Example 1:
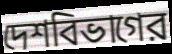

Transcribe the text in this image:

দেশবিভাগের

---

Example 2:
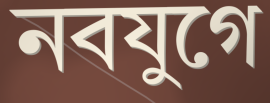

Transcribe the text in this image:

নবযুগে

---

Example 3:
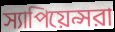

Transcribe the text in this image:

স্যাপিয়েন্সরা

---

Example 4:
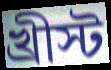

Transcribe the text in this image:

খ্রীস্ট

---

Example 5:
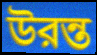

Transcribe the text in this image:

উরন্ত